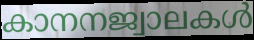
കാനനജ്വാലകൾ